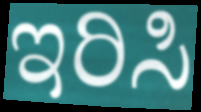
ಇರಿಸಿ